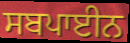
ਸਬਪਾਈਨ